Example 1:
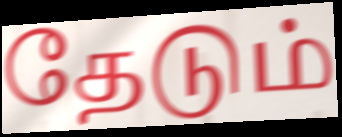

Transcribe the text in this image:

தேடும்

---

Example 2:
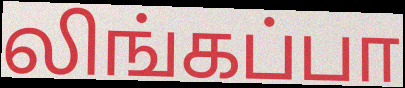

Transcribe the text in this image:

லிங்கப்பா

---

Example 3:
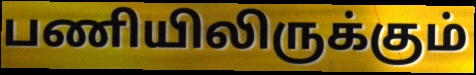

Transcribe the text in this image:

பணியிலிருக்கும்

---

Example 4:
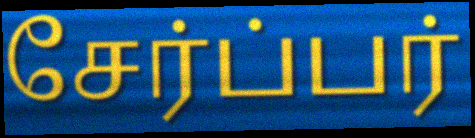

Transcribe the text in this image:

சேர்ப்பர்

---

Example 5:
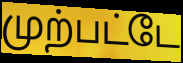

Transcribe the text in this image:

முற்பட்டே